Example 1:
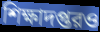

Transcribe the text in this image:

শিক্ষাদপ্তরও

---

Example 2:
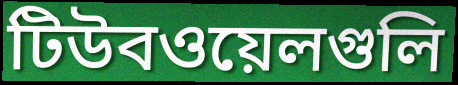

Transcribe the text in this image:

টিউবওয়েলগুলি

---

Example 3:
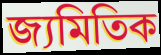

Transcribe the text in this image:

জ্যমিতিক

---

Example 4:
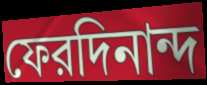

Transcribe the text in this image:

ফেরদিনান্দ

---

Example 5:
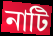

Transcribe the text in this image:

নাটি